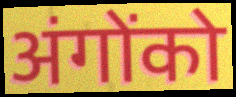
अंगोंको